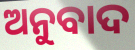
ଅନୁବାଦ